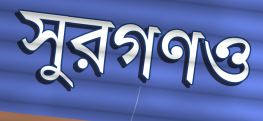
সুরগণও